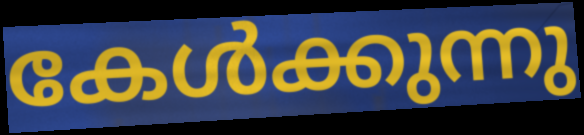
കേൾക്കുന്നു